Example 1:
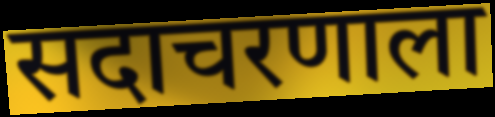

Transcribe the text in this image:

सदाचरणाला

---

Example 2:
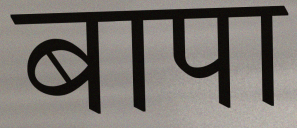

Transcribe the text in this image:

बापा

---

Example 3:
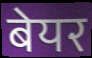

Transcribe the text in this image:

बेयर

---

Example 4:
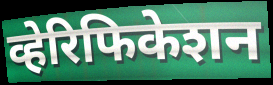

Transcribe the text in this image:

व्हेरिफिकेशन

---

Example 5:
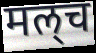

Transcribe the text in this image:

मल्च